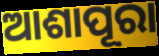
ଆଶାପୂରା